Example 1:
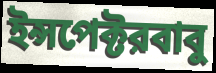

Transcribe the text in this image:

ইন্সপেক্টরবাবু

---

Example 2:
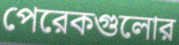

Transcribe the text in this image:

পেরেকগুলোর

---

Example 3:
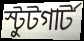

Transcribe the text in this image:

স্টুটগার্ট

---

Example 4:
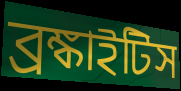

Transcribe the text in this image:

ব্রঙ্কাইটিস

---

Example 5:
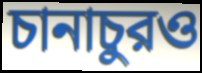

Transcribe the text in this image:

চানাচুরও